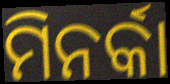
ମିନର୍କା